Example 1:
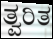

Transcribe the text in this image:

ತ್ವರಿತ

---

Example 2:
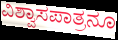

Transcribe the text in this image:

ವಿಶ್ವಾಸಪಾತ್ರನೂ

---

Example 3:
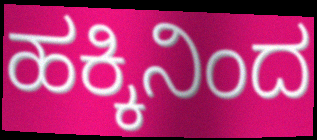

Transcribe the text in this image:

ಹಕ್ಕಿನಿಂದ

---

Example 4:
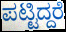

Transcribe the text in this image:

ಪಟ್ಟಿದ್ದರೆ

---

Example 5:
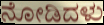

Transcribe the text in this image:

ನೋಡಿದಳು